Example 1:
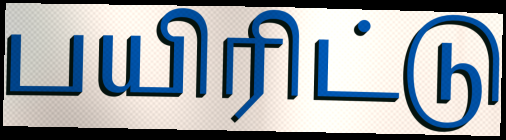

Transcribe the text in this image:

பயிரிட்டு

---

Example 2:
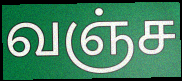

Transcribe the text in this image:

வஞ்ச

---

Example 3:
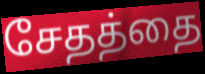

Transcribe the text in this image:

சேதத்தை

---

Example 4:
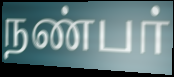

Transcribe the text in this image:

நண்பர்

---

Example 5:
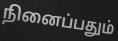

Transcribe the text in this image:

நினைப்பதும்